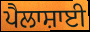
ਪੈਲਾਸ਼ਾਈ